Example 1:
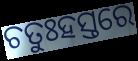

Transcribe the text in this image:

ଚତୁଃହସ୍ତରେ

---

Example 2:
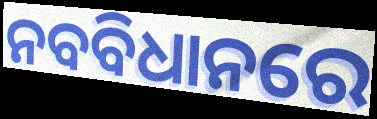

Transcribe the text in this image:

ନବବିଧାନରେ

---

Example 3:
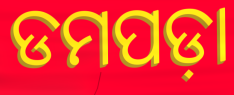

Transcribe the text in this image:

ଡମପଡ଼ା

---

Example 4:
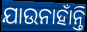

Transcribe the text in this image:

ଯାଉନାହାଁନ୍ତି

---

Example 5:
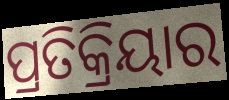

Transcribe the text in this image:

ପ୍ରତିକ୍ରିୟାର